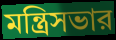
মন্ত্রিসভার